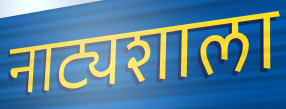
नाट्यशाला